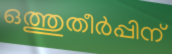
ഒത്തുതീർപ്പിന്